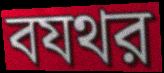
বযথর